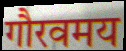
गौरवमय